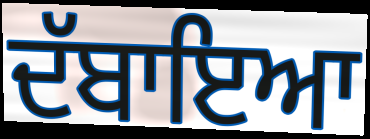
ਦੱਬਾਇਆ